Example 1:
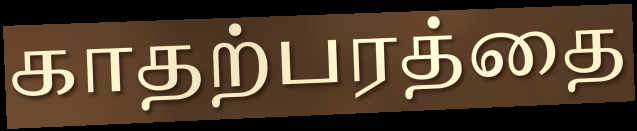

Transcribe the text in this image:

காதற்பரத்தை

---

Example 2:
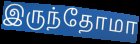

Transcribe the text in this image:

இருந்தோமா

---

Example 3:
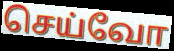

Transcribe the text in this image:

செய்வோ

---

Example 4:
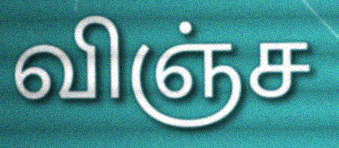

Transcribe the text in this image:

விஞ்ச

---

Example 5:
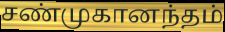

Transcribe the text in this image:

சண்முகானந்தம்